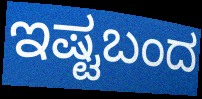
ಇಷ್ಟಬಂದ